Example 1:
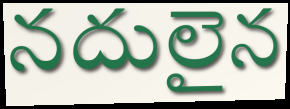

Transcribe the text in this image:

నదులైన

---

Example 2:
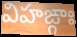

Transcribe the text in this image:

విహఙ్గాః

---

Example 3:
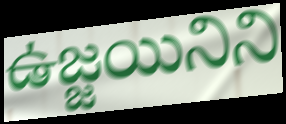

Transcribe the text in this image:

ఉజ్జయినిని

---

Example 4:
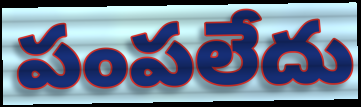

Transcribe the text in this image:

పంపలేదు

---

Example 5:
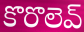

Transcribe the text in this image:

కొరొలెవ్